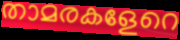
താമരകളേറെ